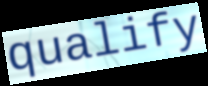
qualify